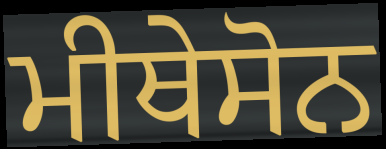
ਮੀਥੇਸੋਨ